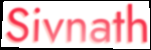
Sivnath